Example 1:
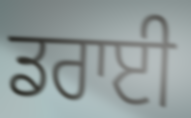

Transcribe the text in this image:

ਡਰਾਈ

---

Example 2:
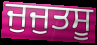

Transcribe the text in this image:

ਜੁਜੁਤਸੂ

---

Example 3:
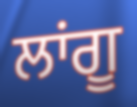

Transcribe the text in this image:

ਲਾਂਗੂ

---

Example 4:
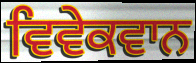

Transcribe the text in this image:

ਵਿਵੇਕਵਾਨ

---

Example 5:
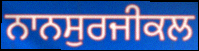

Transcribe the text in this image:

ਨਾਨਸੁਰਜੀਕਲ